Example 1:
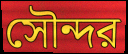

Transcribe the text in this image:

সৌন্দর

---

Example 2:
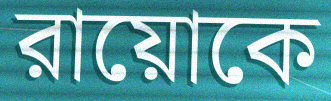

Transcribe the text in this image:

রায়োকে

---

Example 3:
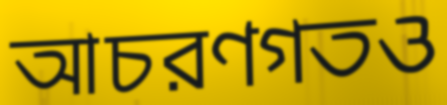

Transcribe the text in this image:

আচরণগতও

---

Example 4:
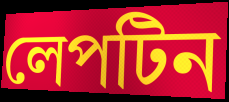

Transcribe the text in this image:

লেপটিন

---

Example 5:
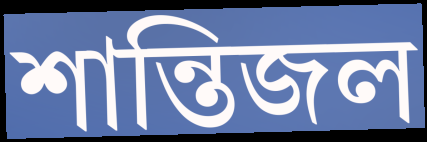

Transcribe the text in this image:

শান্তিজল